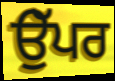
ਉੁੱਪਰ